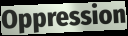
Oppression